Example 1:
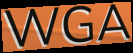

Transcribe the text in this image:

WGA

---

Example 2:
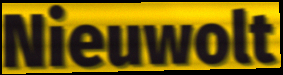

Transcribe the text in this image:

Nieuwolt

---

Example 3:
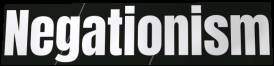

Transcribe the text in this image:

Negationism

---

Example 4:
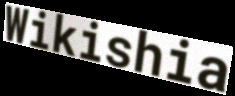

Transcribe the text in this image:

Wikishia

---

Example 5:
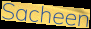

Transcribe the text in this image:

Sacheen